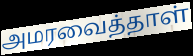
அமரவைத்தாள்